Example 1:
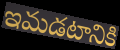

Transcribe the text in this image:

ఇమడటానికి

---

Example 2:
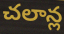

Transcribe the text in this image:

చలాన్ల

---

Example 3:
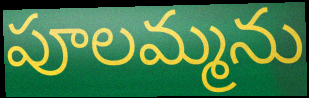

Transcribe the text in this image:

పూలమ్మను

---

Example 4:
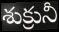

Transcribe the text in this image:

శుక్రునీ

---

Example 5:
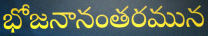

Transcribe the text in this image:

భోజనానంతరమున